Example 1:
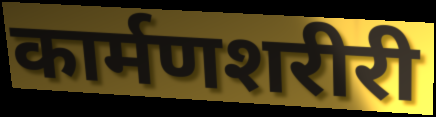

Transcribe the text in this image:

कार्मणशरीरी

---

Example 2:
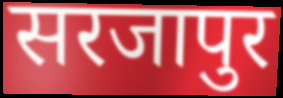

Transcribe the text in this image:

सरजापुर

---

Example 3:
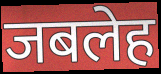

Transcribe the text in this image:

जबलेह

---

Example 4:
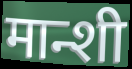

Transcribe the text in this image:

मान्शी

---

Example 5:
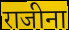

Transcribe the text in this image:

राजीना